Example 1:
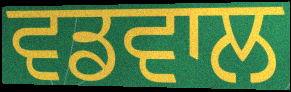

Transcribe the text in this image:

ਵਡਵਾਲ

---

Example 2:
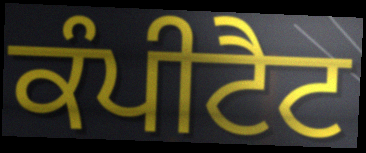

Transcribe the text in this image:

ਕੰਪੀਟੈਟ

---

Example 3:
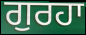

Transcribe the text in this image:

ਗੁਰਹਾ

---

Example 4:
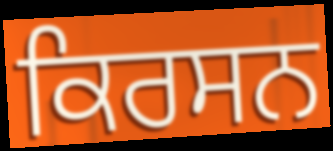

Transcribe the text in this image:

ਕਿਰਸਨ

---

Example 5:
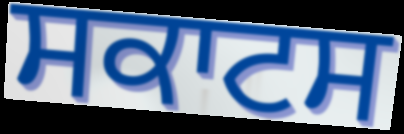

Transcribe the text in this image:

ਸਕਾਟਸ